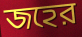
জহের